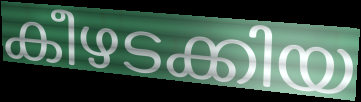
കീഴടക്കിയ